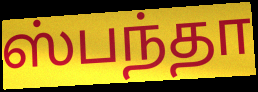
ஸ்பந்தா